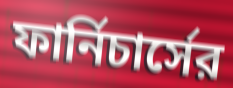
ফার্নিচার্সের